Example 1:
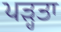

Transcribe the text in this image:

ਪੜ੍ਹਤਾ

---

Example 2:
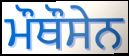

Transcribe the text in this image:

ਮੌਥੌਸੇਨ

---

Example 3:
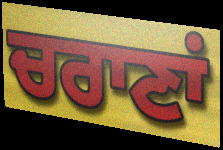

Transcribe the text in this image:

ਚਰਾਣਾਂ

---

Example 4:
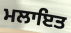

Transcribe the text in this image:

ਮਲਾਇਤ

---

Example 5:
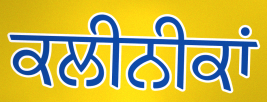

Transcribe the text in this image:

ਕਲੀਨੀਕਾਂ